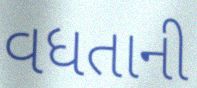
વધતાની